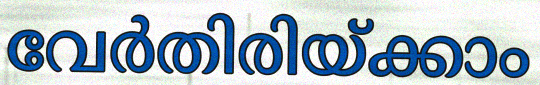
വേർതിരിയ്ക്കാം